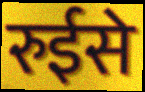
रुईसे